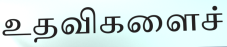
உதவிகளைச்